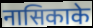
नासिकाके